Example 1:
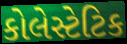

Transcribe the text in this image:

કોલેસ્ટેટિક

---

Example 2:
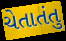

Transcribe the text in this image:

ચેતાતંતુ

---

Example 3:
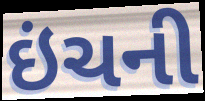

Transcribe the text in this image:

ઇંચની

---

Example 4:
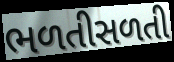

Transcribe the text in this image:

ભળતીસળતી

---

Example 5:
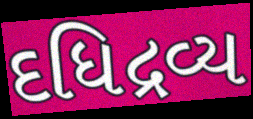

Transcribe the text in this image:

દધિદ્રવ્ય